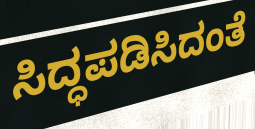
ಸಿದ್ಧಪಡಿಸಿದಂತೆ